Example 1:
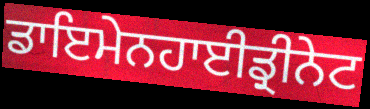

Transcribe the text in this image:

ਡਾਇਮੇਨਹਾਈਡ੍ਰੀਨੇਟ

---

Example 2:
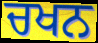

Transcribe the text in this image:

ਚਖਨ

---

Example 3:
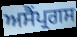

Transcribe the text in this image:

ਅਸੈਂਪ੍ਰਗਸ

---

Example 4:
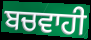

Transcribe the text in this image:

ਬਚਵਾਹੀ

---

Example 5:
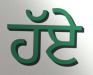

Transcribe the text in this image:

ਹੱਏ